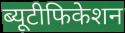
ब्यूटीफिकेशन